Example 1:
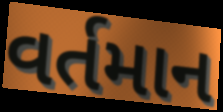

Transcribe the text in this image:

વર્તમાન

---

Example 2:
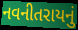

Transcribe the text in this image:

નવનીતરાયનું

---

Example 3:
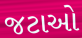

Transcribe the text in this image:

જટાઓ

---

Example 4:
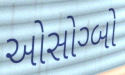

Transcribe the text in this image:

ઓસોગ્બો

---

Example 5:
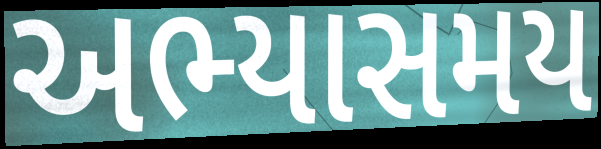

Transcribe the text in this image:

અભ્યાસમય